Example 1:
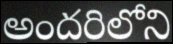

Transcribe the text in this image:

అందరిలోని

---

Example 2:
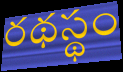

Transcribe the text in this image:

రథస్థం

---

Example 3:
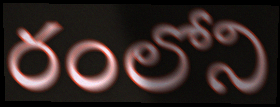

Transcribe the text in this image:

రంలోని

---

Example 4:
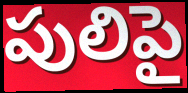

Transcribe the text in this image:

పులిపై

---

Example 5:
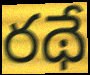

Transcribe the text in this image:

రథే